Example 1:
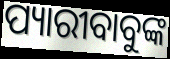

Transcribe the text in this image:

ପ୍ୟାରୀବାବୁଙ୍କ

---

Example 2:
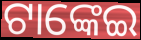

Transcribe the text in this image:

ଟାଙ୍କେଇ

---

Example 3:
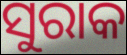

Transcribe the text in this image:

ସୁରାକ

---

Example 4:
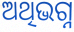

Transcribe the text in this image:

ଅଥିଭଗ୍ନ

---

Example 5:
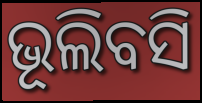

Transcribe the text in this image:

ଭୂଲିବସି